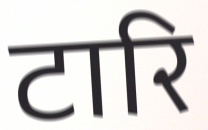
टारि